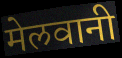
मेलवानी